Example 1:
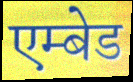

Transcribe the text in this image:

एम्बेड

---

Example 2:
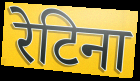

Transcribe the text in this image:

रेटिना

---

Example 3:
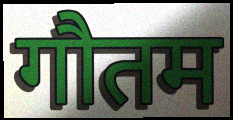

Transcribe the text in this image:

गौतम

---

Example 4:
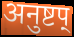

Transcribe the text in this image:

अनुष्टप्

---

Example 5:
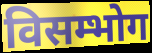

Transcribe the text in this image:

विसम्भोग